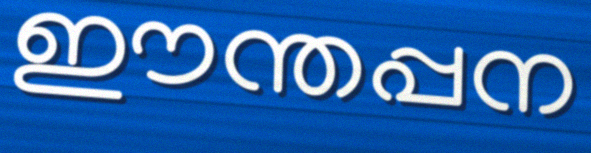
ഈന്തപ്പന